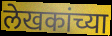
लेखकांच्या